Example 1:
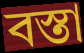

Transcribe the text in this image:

বস্তা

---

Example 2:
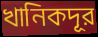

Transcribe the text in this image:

খানিকদূর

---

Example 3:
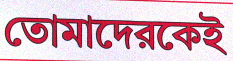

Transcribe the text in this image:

তোমাদেরকেই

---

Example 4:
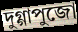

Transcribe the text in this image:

দুগ্গাপুজো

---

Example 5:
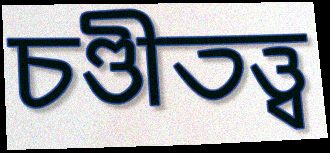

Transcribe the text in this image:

চণ্ডীতত্ত্ব